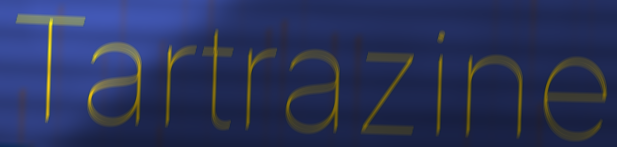
Tartrazine